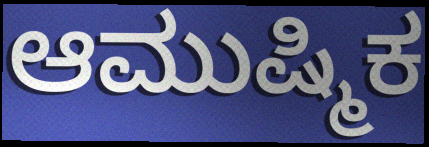
ಆಮುಷ್ಮಿಕ